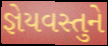
જ્ઞેયવસ્તુને